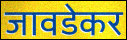
जावडेकर